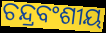
ଚନ୍ଦ୍ରବଂଶୀୟ